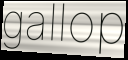
gallop